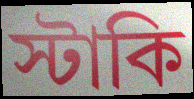
স্টাকি